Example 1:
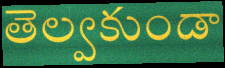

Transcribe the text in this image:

తెల్వకుండా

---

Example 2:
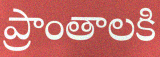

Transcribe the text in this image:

ప్రాంతాలకి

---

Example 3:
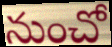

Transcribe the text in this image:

నుంచో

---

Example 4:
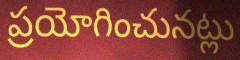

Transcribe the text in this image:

ప్రయోగించునట్లు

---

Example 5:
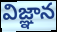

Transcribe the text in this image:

విజ్ఞాన